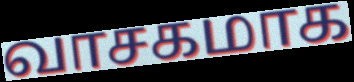
வாசகமாக